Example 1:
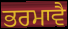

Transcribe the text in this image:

ਭਰਮਾਵੈ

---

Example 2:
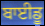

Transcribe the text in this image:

ਬਾਈਡੂ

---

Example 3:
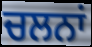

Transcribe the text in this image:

ਚਲਨਾਂ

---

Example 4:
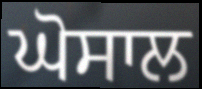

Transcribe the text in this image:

ਘੋਸਾਲ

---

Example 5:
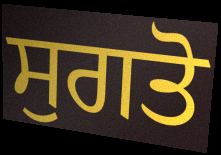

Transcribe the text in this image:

ਸੁਗਤੋ